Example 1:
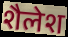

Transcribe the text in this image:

शैलेश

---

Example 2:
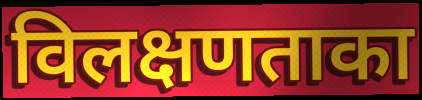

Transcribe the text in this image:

विलक्षणताका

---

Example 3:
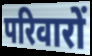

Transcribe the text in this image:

परिवारों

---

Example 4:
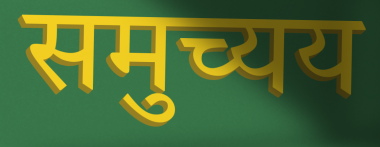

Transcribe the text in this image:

समुच्यय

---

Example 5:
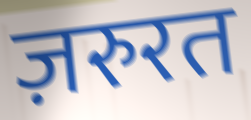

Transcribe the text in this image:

ज़रुरत